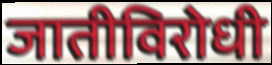
जातीविरोधी